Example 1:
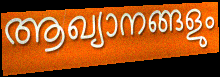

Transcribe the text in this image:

ആഖ്യാനങ്ങളും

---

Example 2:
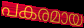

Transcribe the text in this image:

പകരമായ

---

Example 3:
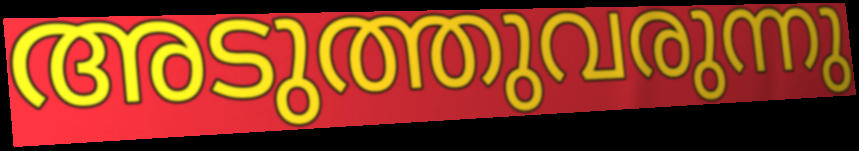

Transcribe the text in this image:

അടുത്തുവരുന്നു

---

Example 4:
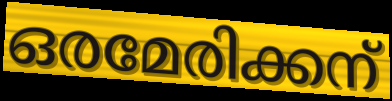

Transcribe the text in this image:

ഒരമേരിക്കന്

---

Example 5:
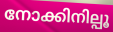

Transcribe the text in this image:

നോക്കിനില്പൂ